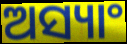
ଅସ୍ୟାଂ